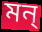
মন্